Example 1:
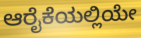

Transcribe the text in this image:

ಆರೈಕೆಯಲ್ಲಿಯೇ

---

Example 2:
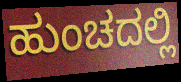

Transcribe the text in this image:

ಹುಂಚದಲ್ಲಿ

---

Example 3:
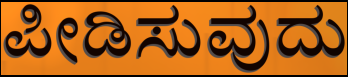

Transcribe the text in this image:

ಪೀಡಿಸುವುದು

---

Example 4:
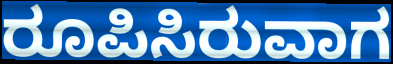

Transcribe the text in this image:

ರೂಪಿಸಿರುವಾಗ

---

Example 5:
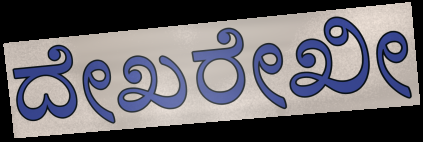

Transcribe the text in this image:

ದೇಖರೇಖೀ